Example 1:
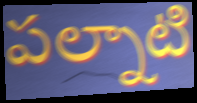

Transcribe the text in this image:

పల్నాటి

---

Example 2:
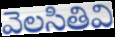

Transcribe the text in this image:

వెలసితివి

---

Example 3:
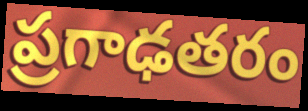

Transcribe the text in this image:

ప్రగాఢతరం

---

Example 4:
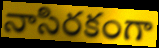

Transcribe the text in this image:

నాసిరకంగా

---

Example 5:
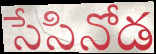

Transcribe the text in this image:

సేసినోడ